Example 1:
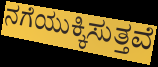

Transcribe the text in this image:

ನಗೆಯುಕ್ಕಿಸುತ್ತವೆ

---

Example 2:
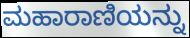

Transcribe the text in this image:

ಮಹಾರಾಣಿಯನ್ನು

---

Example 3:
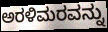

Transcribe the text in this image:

ಅರಳಿಮರವನ್ನು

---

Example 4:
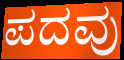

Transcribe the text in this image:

ಪದವು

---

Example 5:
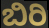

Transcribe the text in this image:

ಬಿರಿ